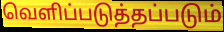
வெளிப்படுத்தப்படும்